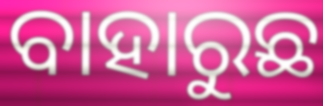
ବାହାରୁଛ